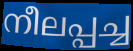
നീലപ്പച്ച